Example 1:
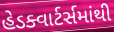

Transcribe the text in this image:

હેડક્વાર્ટર્સમાંથી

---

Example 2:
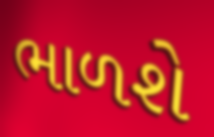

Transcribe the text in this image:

ભાળશે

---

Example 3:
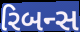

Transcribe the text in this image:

રિબન્સ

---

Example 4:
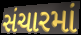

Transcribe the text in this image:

સંચારમાં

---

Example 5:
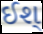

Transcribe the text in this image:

ઈશ્